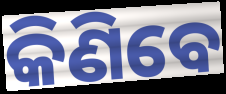
କିଣିବେ